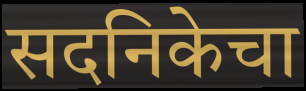
सदनिकेचा